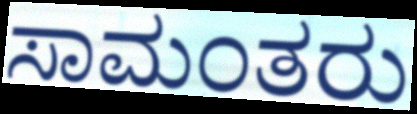
ಸಾಮಂತರು